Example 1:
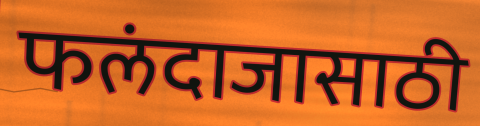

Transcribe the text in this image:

फलंदाजासाठी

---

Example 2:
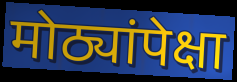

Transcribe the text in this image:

मोठ्यांपेक्षा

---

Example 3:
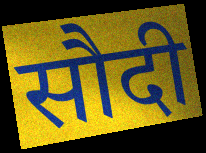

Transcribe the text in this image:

सौदी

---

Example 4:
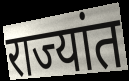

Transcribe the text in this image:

राज्यांत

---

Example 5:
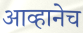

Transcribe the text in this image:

आव्हानेच